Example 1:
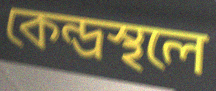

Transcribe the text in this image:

কেন্দ্রস্থলে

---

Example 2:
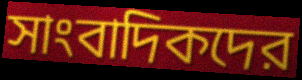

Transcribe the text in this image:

সাংবাদিকদের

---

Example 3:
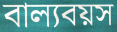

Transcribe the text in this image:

বাল্যবয়স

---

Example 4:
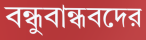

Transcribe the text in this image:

বন্ধুবান্ধবদের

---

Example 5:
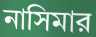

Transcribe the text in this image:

নাসিমার